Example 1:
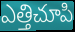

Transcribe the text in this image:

ఎత్తిచూపి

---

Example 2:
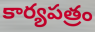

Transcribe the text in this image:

కార్యపత్రం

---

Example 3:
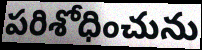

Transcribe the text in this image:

పరిశోధించును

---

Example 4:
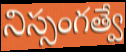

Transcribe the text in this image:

నిస్సంగత్వే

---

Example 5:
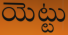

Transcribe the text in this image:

యెట్టు